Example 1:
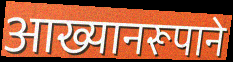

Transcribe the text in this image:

आख्यानरूपाने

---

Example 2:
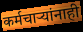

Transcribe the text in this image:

कर्मचार्‍यांनाही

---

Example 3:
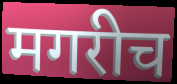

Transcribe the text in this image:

मगरीच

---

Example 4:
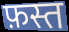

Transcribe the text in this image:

फ़स्त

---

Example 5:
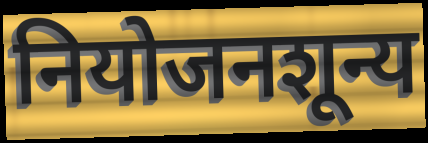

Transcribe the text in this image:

नियोजनशून्य